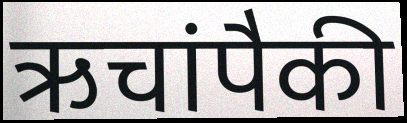
ऋचांपैकी